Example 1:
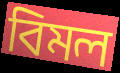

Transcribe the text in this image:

বিমল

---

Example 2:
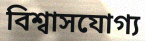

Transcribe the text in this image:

বিশ্বাসযোগ্য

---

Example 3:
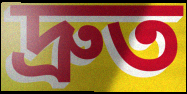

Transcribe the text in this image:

দ্ৰুত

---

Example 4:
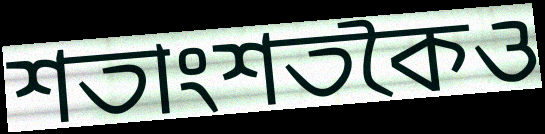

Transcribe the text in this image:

শতাংশতকৈও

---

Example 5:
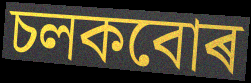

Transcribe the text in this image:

চলকবোৰ